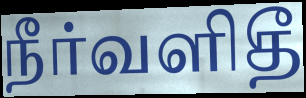
நீர்வளிதீ